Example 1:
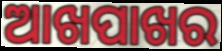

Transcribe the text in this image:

ଆଖପାଖର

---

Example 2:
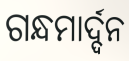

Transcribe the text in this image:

ଗନ୍ଧମାର୍ଦ୍ଦନ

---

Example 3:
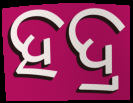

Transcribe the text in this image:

ହଦ୍ର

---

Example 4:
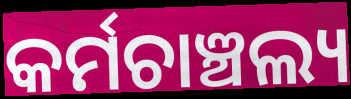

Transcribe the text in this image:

କର୍ମଚାଞ୍ଚଲ୍ୟ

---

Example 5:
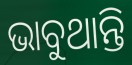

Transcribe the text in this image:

ଭାବୁଥାନ୍ତି